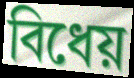
বিধেয়